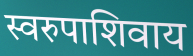
स्वरुपाशिवाय